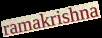
ramakrishna